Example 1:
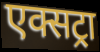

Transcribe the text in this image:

एक्सट्रा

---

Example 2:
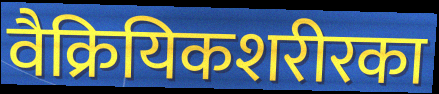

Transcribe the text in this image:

वैक्रियिकशरीरका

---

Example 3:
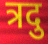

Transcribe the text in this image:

त्रदु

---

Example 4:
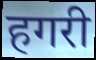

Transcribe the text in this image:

हगरी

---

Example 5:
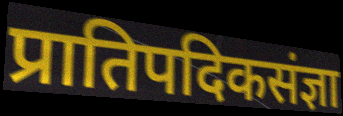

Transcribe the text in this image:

प्रातिपदिकसंज्ञा